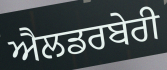
ਐਲਡਰਬੇਰੀ